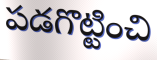
పడగొట్టించి